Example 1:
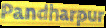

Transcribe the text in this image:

Pandharpur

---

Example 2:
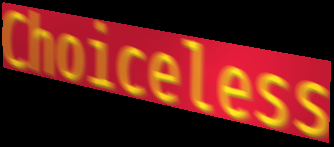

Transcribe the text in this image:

Choiceless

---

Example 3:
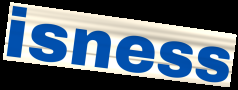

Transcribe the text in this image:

isness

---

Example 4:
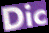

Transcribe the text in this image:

Dic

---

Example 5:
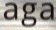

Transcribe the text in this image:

aga